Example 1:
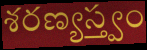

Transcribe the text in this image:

శరణ్యస్త్వం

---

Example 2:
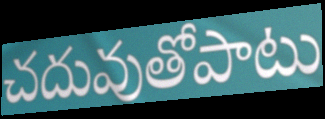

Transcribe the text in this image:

చదువుతోపాటు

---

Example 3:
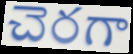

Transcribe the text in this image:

చెరగా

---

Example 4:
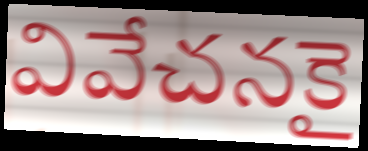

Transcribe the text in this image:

వివేచనకై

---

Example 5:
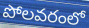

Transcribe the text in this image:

పోలవరంలో